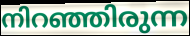
നിറഞ്ഞിരുന്ന